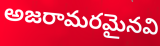
అజరామరమైనవి